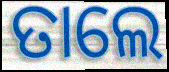
ତାଲେ